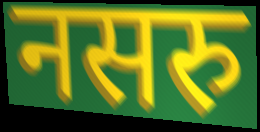
नसरु